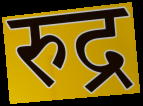
रुद्र